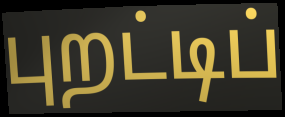
புறட்டிப்